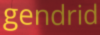
gendrid